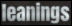
leanings